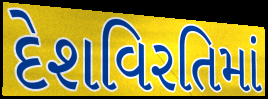
દેશવિરતિમાં